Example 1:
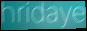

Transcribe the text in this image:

hridaye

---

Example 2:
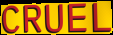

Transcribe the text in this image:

CRUEL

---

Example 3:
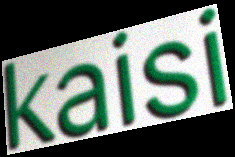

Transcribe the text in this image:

kaisi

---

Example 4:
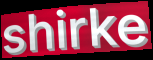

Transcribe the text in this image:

shirke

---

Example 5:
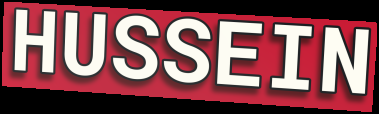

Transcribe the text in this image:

HUSSEIN